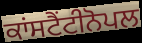
ਕਾਂਸਟੈਂਟੀਨੋਪਲ